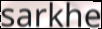
sarkhe